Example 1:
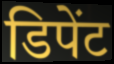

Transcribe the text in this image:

डिपेंट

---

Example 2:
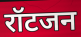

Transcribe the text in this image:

रॉटजन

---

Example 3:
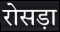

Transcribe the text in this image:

रोसड़ा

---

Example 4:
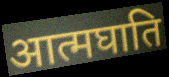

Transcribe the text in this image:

आत्मघाति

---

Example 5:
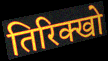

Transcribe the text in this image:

तिरिक्खो